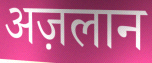
अज़लान